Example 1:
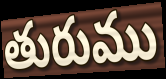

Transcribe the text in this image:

తురుము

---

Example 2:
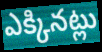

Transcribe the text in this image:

ఎక్కినట్లు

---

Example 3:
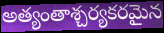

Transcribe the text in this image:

అత్యంతాశ్చర్యకరమైన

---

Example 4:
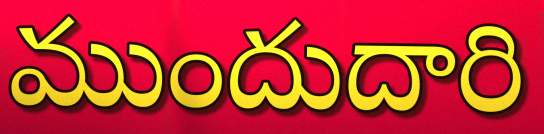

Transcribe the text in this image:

ముందుదారి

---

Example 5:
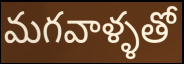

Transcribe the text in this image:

మగవాళ్ళతో